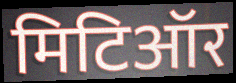
मिटिऑर